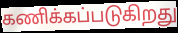
கணிக்கப்படுகிறது